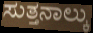
ಸುತ್ತನಾಲ್ಕು